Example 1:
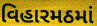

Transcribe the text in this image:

વિહારમઠમાં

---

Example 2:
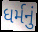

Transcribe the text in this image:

ધર્મનું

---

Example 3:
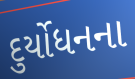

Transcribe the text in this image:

દુર્યોધનના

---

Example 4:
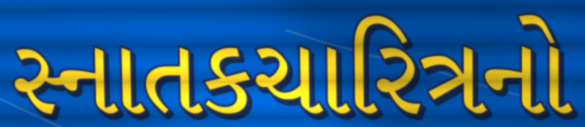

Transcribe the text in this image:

સ્નાતકચારિત્રનો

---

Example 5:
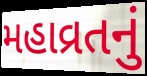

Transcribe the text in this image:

મહાવ્રતનું